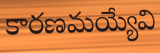
కారణమయ్యేవి